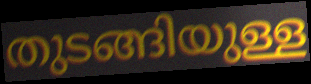
തുടങ്ങിയുള്ള